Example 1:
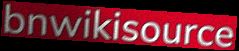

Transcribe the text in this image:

bnwikisource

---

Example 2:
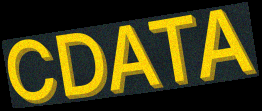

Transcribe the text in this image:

CDATA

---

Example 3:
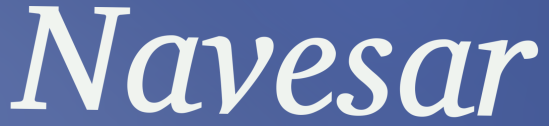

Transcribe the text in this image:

Navesar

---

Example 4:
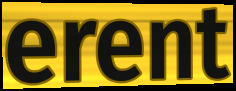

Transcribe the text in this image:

erent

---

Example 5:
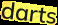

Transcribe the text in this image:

darts